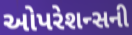
ઓપરેશન્સની